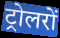
ट्रोलरों